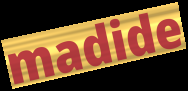
madide